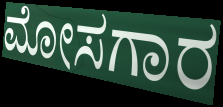
ಮೋಸಗಾರ